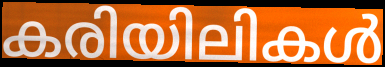
കരിയിലികൾ